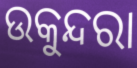
ଉକୁନ୍ଦରା